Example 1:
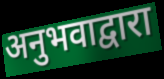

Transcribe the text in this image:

अनुभवाद्वारा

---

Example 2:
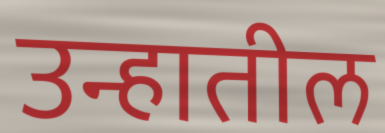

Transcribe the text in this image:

उन्हातील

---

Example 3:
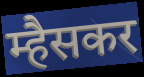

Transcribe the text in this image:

म्हैसकर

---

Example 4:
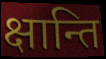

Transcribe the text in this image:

क्षान्ति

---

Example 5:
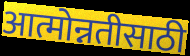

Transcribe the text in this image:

आत्मोन्नतीसाठी